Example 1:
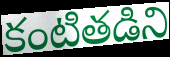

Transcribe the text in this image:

కంటితడిని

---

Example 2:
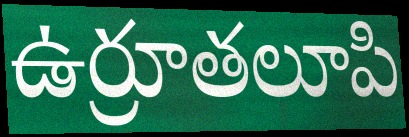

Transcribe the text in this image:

ఉర్రూతలూపి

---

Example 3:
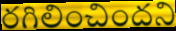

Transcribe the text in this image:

రగిలించిందని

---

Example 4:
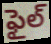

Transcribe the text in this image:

ఫైల్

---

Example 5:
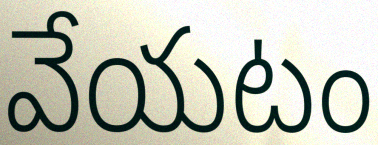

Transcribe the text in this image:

వేయటం